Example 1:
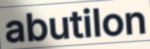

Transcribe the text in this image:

abutilon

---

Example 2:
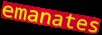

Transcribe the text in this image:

emanates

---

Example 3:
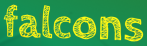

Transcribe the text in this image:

falcons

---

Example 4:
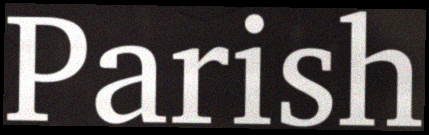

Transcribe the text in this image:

Parish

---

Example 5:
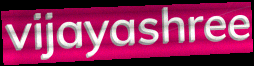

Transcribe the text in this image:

vijayashree